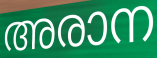
അരാന